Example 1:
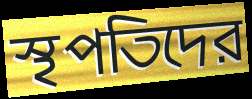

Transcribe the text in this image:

স্থপতিদের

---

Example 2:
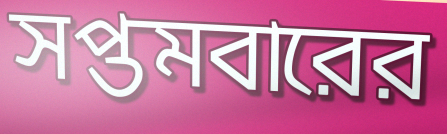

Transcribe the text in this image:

সপ্তমবারের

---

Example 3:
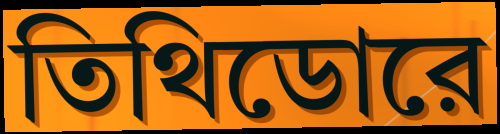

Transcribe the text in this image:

তিথিডোরে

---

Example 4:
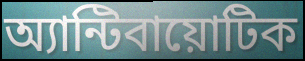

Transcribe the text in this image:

অ্যান্টিবায়োটিক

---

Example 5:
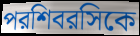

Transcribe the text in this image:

পরশিবরসিকে